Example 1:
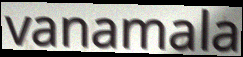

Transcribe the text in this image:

vanamala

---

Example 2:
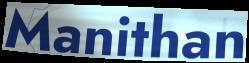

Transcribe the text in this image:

Manithan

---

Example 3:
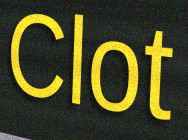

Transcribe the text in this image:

Clot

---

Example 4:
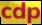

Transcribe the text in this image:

cdp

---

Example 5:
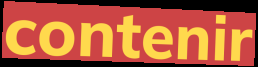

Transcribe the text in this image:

contenir